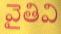
వైతివి